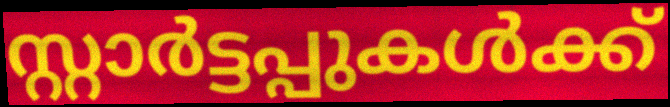
സ്റ്റാർട്ടപ്പുകൾക്ക്